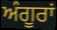
ਅੰਗੂਰਾਂ